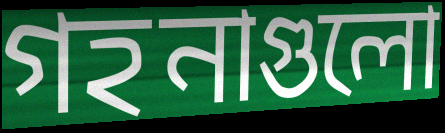
গহনাগুলো